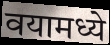
वयामध्ये